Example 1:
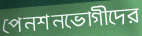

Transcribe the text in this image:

পেনশনভোগীদের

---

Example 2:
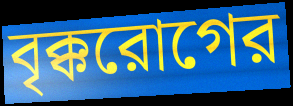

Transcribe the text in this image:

বৃক্করোগের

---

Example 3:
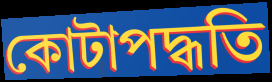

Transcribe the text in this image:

কোটাপদ্ধতি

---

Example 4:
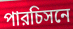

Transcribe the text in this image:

পারচিসনে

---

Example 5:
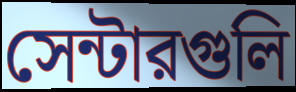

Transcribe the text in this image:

সেন্টারগুলি